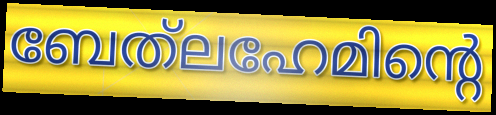
ബേത്‌ലഹേമിന്റെ